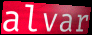
alvar